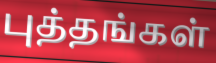
புத்தங்கள்